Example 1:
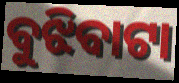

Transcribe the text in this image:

ବୁଝିବାଟା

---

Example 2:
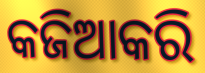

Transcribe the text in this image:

କଜିଆକରି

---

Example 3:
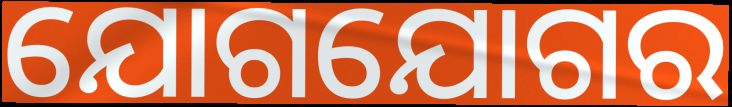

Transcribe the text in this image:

ଯୋଗଯୋଗର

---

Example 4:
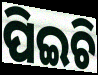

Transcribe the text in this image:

ପିଇଚି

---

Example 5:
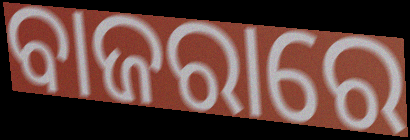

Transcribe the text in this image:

ବାଜରାରେ